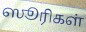
ஸூரிகள்